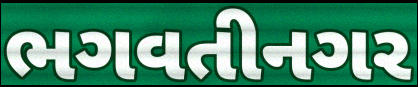
ભગવતીનગર